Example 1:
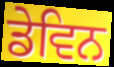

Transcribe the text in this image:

ਡੇਵਿਨ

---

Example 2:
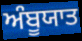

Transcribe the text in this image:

ਅੰਬੂਯਾਤ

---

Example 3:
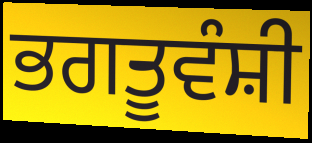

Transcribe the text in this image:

ਭਗਤੂਵੰਸ਼ੀ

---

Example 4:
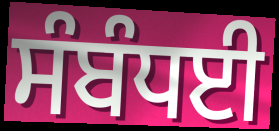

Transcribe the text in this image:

ਸੰਬੰਧਈ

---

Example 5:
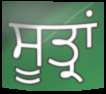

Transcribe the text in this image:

ਸੂਤ੍ਰਾਂ